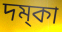
দম্‌কা